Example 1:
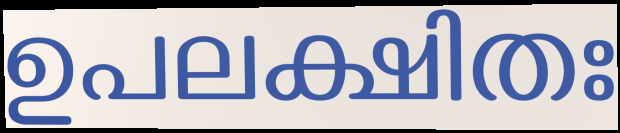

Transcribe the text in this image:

ഉപലക്ഷിതഃ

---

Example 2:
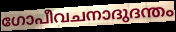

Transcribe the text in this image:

ഗോപീവചനാദുദന്തം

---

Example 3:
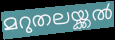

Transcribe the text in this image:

മറുതലയ്ക്കൽ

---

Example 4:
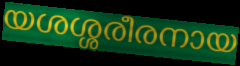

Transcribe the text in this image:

യശശ്ശരീരനായ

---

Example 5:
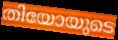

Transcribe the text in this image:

തിയോയുടെ